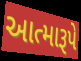
આત્મારૂપે